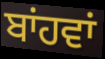
ਬਾਂਹਵਾਂ